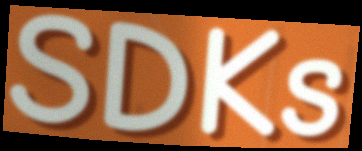
SDKs